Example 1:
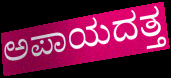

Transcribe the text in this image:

ಅಪಾಯದತ್ತ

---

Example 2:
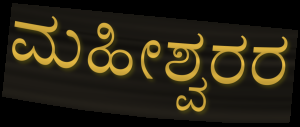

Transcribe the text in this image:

ಮಹೀಶ್ವರರ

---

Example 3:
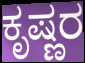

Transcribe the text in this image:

ಕೃಷ್ಣರ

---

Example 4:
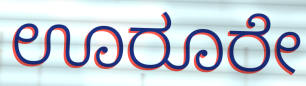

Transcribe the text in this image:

ಊರೂರೇ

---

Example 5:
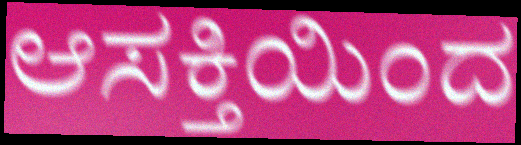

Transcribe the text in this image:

ಆಸಕ್ತಿಯಿಂದ